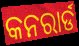
କନରାର୍ଡ